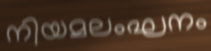
നിയമലംഘനം